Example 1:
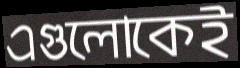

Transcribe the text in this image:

এগুলোকেই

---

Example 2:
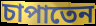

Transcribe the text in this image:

চাপাতেন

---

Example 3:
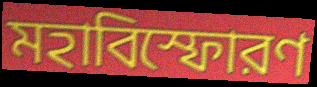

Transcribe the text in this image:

মহাবিস্ফোরণ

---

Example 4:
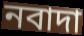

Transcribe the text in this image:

নবাদা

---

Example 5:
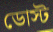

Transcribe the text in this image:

ডোস্ট